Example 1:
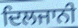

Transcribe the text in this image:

ਦਿਲਜਾਨੀ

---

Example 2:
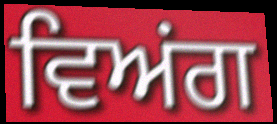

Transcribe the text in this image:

ਵਿਅਂਗ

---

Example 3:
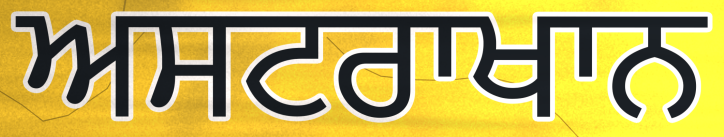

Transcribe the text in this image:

ਅਸਟਰਾਖਾਨ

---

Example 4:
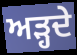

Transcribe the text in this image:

ਅੜ੍ਹਦੇ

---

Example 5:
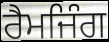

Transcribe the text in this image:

ਰੈਮਜਿੰਗ